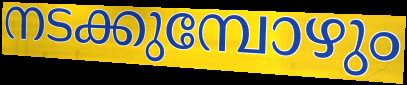
നടക്കുമ്പോഴും